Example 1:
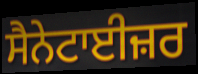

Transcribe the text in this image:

ਸੈਨੇਟਾਈਜ਼ਰ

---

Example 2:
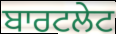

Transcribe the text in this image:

ਬਾਰਟਲੇਟ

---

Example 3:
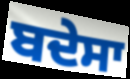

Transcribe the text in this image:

ਬਦੇਸਾ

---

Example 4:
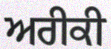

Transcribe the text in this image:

ਅਰੀਕੀ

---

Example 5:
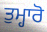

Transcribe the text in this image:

ਤੁਮ੍ਹ੍ਹਾਰੋ